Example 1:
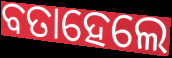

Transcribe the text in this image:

ବତାହେଲେ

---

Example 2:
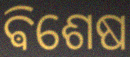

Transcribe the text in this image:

ଵିଶେଷ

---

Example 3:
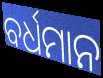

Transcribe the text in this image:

ବର୍ଧମାନ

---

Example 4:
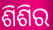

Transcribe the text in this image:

ଶିଶିର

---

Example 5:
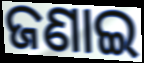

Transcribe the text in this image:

ଜଣାଇ